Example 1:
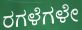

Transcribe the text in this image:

ರಗಳೆಗಳೇ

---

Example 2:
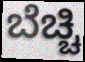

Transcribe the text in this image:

ಬೆಚ್ಚಿ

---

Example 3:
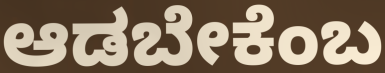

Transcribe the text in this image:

ಆಡಬೇಕೆಂಬ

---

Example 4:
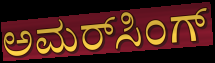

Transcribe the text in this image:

ಅಮರ್‌ಸಿಂಗ್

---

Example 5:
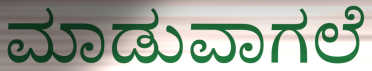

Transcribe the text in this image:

ಮಾಡುವಾಗಲೆ